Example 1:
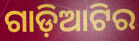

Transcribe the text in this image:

ଗାଡ଼ିଆଟିର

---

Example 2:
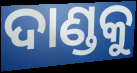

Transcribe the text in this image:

ଦାଣ୍ଡକୁ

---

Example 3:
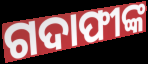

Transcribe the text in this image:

ଗଦାଫୀଙ୍କ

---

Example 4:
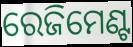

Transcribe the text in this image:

ରେଜିମେଣ୍ଟ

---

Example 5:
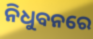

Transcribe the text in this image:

ନିଧୁବନରେ